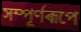
সম্পূৰ্ণৰূপে